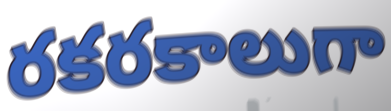
రకరకాలుగా